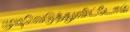
முடிவெடுத்துவிட்டோம்